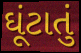
ઘૂંટાતું